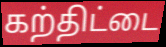
கற்திட்டை